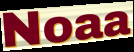
Noaa